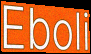
Eboli